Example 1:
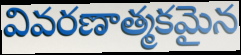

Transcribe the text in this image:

వివరణాత్మకమైన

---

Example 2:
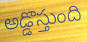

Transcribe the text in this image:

అడ్డొస్తుంది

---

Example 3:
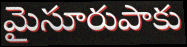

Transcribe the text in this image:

మైసూరుపాకు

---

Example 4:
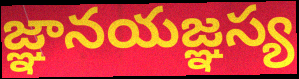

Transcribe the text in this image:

జ్ఞానయజ్ఞస్య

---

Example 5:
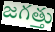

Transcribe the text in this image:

జగత్తు